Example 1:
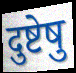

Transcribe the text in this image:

दुष्टेषु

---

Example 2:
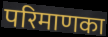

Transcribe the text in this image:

परिमाणका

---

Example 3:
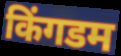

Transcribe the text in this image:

किंगडम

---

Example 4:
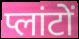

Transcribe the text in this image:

प्लांटों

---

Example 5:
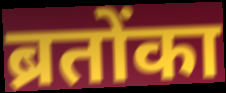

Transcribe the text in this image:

ब्रतोंका